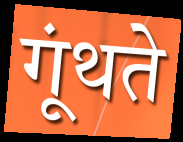
गूंथते